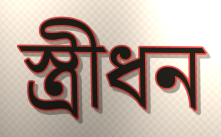
স্ত্রীধন